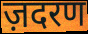
ज़दरण